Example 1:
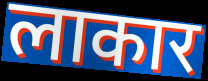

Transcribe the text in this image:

लाकार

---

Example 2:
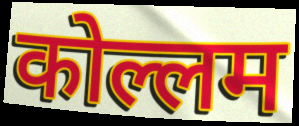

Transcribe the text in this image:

कोल्लम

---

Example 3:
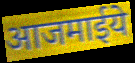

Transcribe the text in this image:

आजमाईये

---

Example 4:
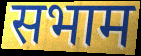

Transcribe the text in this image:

सभाम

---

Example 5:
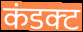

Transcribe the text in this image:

कंडक्‍ट